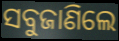
ସବୁଜାଣିଲେ